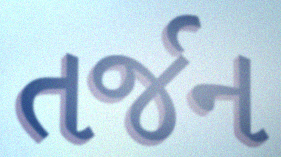
તર્જન